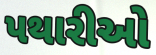
પથારીઓ